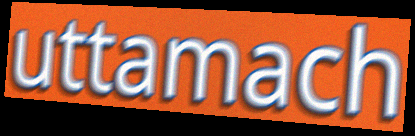
uttamach